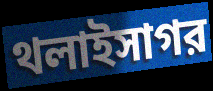
থলাইসাগর